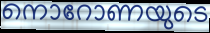
നൊറോണയുടെ